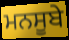
ਮਨਸੂਬੇ